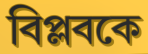
বিপ্লবকে